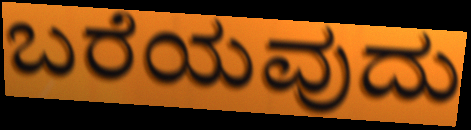
ಬರೆಯವುದು